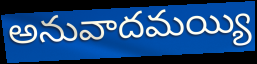
అనువాదమయ్యి